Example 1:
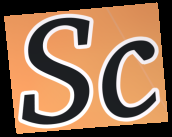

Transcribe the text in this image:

Sc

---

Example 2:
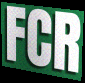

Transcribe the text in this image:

FCR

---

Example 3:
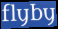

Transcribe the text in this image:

flyby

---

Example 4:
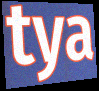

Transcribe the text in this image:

tya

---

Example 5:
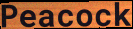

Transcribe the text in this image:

Peacock